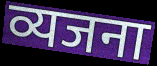
व्यजना